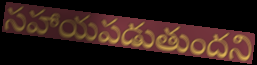
సహాయపడుతుందని